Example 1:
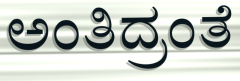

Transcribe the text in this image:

ಅಂತಿದ್ರಂತೆ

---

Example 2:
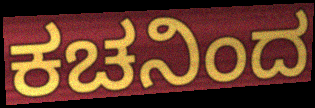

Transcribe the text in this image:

ಕಚನಿಂದ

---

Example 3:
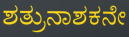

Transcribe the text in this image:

ಶತ್ರುನಾಶಕನೇ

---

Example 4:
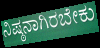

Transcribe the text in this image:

ನಿಷ್ಠನಾಗಿರಬೇಕು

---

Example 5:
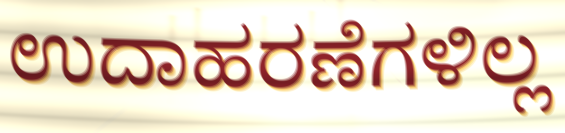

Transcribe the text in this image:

ಉದಾಹರಣೆಗಳಿಲ್ಲ